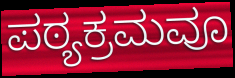
ಪಠ್ಯಕ್ರಮವೂ